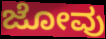
ಜೋವು